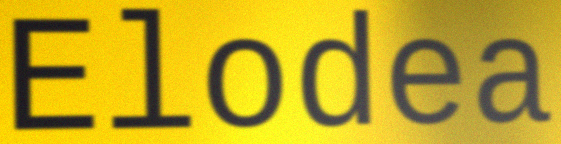
Elodea